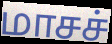
மாசச்